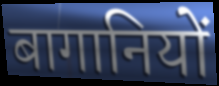
बागानियों